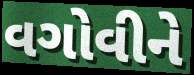
વગોવીને